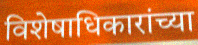
विशेषाधिकारांच्या